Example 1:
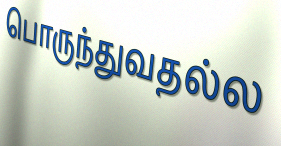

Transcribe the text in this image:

பொருந்துவதல்ல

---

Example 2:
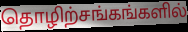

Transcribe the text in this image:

தொழிற்சங்கங்களில்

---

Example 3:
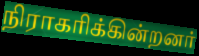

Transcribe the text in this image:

நிராகரிக்கின்றனர்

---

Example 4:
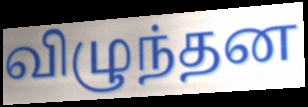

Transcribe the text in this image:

விழுந்தன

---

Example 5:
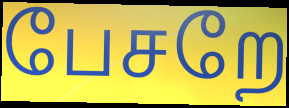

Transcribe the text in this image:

பேசறே